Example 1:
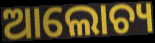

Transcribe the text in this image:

ଆଲୋଚ୍ୟ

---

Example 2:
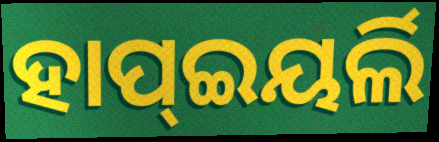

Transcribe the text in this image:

ହାପ୍ଇୟର୍ଲି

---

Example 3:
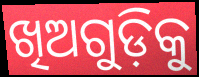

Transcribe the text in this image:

ଖିଅଗୁଡ଼ିକୁ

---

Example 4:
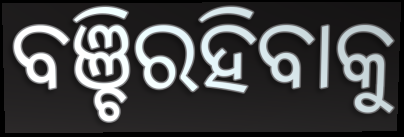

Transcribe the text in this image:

ବଞ୍ଚିରହିବାକୁ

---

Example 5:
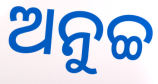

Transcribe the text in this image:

ଅନୁଚ୍ଚ